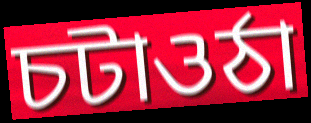
চটাওঠা